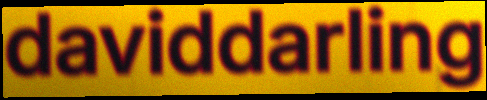
daviddarling